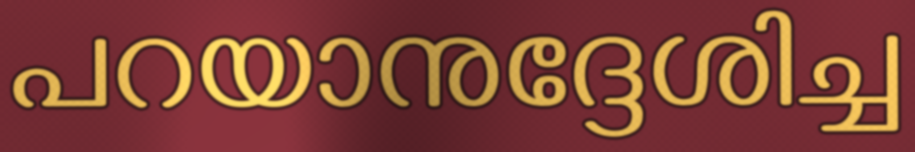
പറയാനുദ്ദേശിച്ച